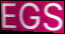
EGS